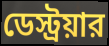
ডেস্ট্রয়ার